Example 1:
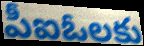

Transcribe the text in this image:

పీఐఓలకు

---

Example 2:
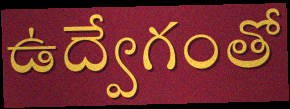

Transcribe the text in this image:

ఉద్వేగంతో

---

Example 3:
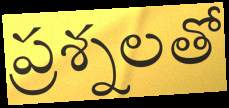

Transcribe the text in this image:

ప్రశ్నలతో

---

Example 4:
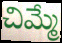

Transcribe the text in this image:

చిమ్మే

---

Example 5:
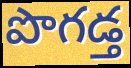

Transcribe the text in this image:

పొగడ్త